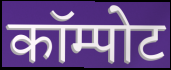
कॉम्पोट